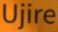
Ujire